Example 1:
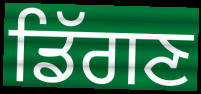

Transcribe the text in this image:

ਡਿੱਗਣ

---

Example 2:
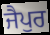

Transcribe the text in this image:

ਜੈਪੁਰ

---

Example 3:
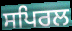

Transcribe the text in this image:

ਸਪਿਰਲ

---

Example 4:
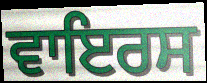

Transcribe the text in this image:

ਵਾਇਰਸ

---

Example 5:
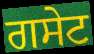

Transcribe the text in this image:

ਗਸੇਟ